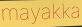
mayakka